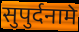
सुपुर्दनामे